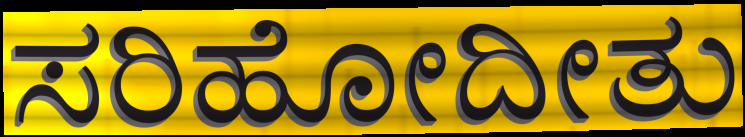
ಸರಿಹೋದೀತು